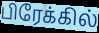
பிரேக்கில்